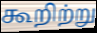
கூறிற்று